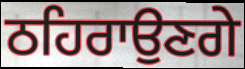
ਠਹਿਰਾਉਣਗੇ